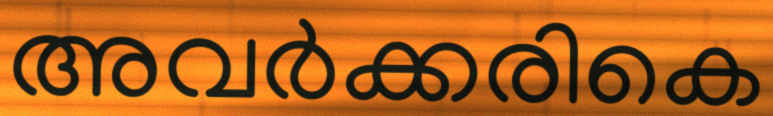
അവർക്കരികെ